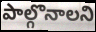
పాల్గొనాలని